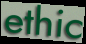
ethic